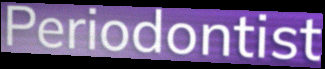
Periodontist